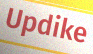
Updike